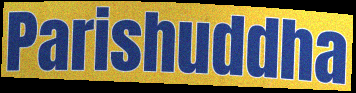
Parishuddha